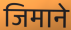
जिमाने